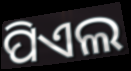
ପିଏଲ